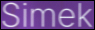
Simek